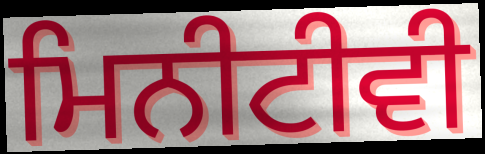
ਮਿਨੀਟੀਵੀ